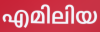
എമിലിയ